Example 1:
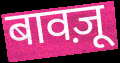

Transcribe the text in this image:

बावज़ू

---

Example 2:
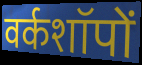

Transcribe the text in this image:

वर्कशॉपों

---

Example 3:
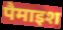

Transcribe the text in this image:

पैमाइश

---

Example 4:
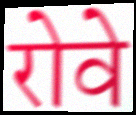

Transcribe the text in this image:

रोवे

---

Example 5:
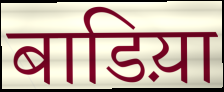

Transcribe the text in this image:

बाडिय़ा